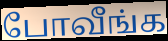
போவீங்க